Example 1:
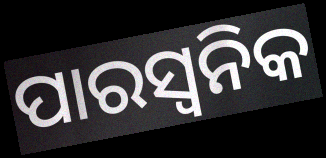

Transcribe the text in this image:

ପାରସ୍ୱନିକ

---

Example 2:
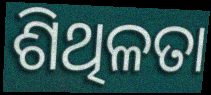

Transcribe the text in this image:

ଶିଥିଳତା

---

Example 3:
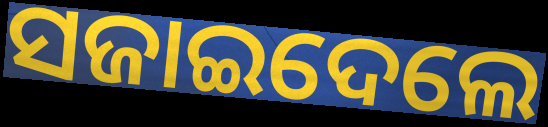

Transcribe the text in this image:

ସଜାଇଦେଲେ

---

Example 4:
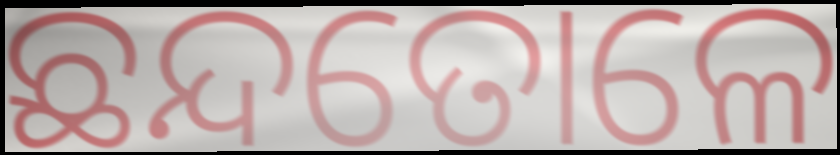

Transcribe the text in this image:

ଛନ୍ଦତୋଳେ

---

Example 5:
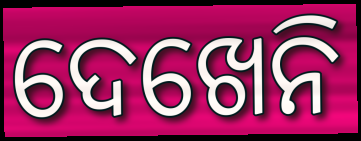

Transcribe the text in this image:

ଦେଖେନି